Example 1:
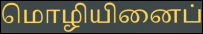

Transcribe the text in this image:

மொழியினைப்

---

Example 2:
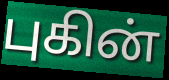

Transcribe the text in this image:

புகின்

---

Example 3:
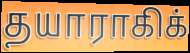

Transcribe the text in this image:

தயாராகிக்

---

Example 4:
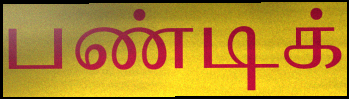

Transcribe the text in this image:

பண்டிக்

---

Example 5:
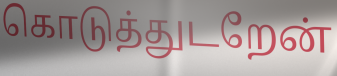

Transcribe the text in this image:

கொடுத்துடறேன்